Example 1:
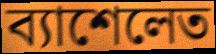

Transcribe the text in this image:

ব্যাশেলেত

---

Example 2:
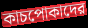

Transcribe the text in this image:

কাচপোকাদের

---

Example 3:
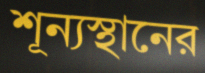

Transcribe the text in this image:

শূন্যস্থানের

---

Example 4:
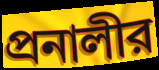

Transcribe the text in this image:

প্রনালীর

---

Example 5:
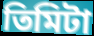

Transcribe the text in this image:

তিমিটা